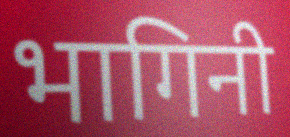
भागिनी